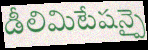
డీలిమిటేషన్పై